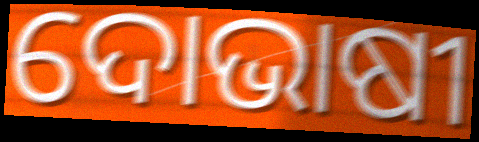
ଦୋଭାଷୀ